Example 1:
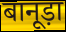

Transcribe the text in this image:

बानूड़ा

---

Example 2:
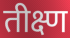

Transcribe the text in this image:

तीक्ष्ण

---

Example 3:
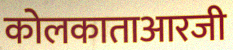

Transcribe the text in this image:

कोलकाताआरजी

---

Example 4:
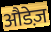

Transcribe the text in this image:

औडेज़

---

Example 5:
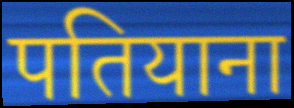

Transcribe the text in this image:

पतियाना